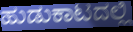
ಹುಡುಕಾಟದಲ್ಲಿ